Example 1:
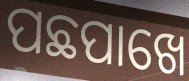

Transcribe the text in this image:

ପଛପାଖେ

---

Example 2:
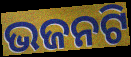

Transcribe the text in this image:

ଭଜନଟି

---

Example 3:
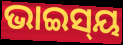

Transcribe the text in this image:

ଭାଇସ୍‌ୟ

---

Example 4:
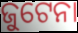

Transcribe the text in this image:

ଜୁଟେନା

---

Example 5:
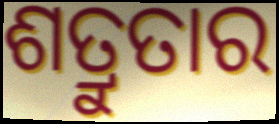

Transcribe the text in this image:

ଶତ୍ରୁତାର